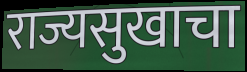
राज्यसुखाचा